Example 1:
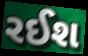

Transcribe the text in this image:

રઈશ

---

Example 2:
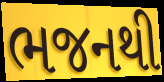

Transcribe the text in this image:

ભજનથી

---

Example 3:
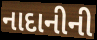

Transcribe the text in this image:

નાદાનીની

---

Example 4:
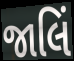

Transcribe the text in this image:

જાલિં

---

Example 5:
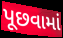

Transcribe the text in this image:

પૂછવામાં